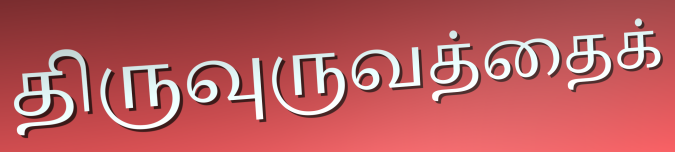
திருவுருவத்தைக்